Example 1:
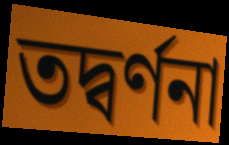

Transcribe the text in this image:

তদ্বর্ণনা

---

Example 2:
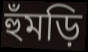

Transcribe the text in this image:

হুঁমড়ি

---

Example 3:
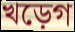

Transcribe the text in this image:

খড়েগ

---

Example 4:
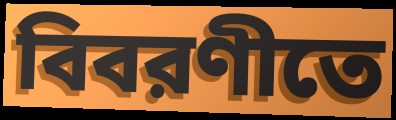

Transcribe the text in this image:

বিবরণীতে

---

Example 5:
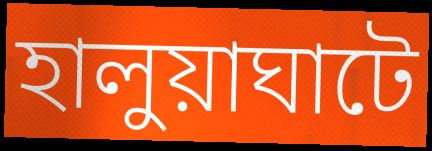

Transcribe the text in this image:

হালুয়াঘাটে